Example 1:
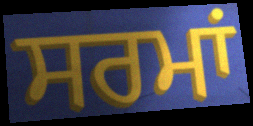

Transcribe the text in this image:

ਸਰਮਾਂ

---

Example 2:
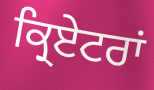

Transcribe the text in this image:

ਕ੍ਰਿਏਟਰਾਂ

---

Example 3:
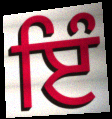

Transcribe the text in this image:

ਇੰ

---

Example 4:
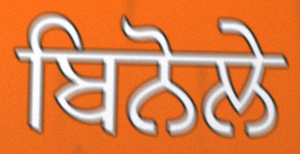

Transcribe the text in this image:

ਬਿਨੋਲੇ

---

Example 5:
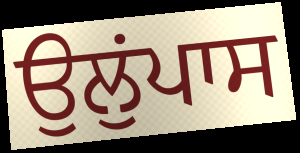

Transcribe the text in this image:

ਉਲੁਂਪਾਸ